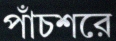
পাঁচশরে